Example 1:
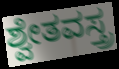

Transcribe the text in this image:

ಶ್ವೇತವಸ್ತ್ರ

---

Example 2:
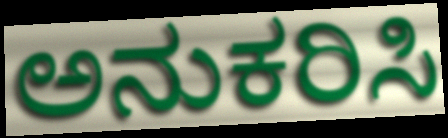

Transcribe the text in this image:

ಅನುಕರಿಸಿ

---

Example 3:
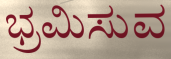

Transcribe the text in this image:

ಭ್ರಮಿಸುವ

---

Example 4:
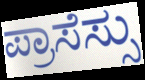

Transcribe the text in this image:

ಪ್ರಾಸೆಸ್ಸು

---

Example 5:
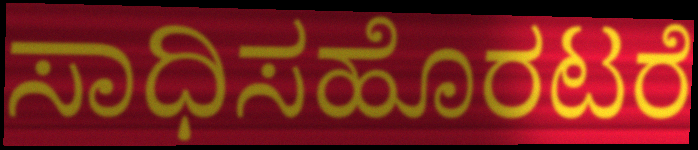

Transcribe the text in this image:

ಸಾಧಿಸಹೊರಟರೆ